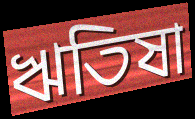
ঋতিষা